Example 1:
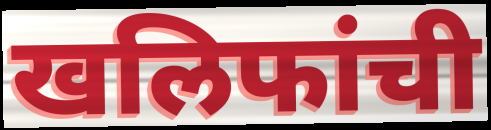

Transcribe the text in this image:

खलिफांची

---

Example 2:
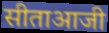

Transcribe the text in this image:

सीताआजी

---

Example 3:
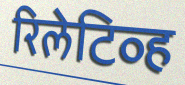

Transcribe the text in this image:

रिलेटिव्ह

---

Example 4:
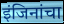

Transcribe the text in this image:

इंजिनांचा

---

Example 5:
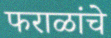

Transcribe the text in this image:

फराळांचे